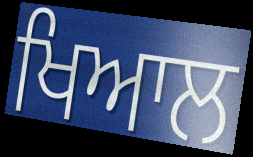
ਖਿਆਲ